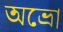
অভ্রো